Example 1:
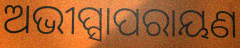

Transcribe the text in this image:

ଅଭୀପ୍ସାପରାୟଣ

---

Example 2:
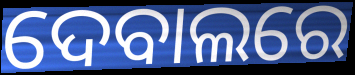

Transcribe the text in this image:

ଦେବାଲରେ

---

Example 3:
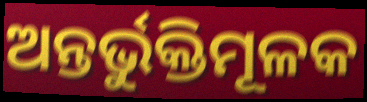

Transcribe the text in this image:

ଅନ୍ତର୍ଭୁକ୍ତିମୂଳକ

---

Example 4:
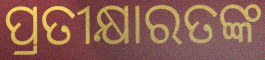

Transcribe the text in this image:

ପ୍ରତୀକ୍ଷାରତଙ୍କ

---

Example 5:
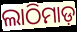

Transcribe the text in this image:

ଲାଠିମାଡ଼